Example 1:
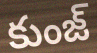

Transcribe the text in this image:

కుంజ్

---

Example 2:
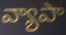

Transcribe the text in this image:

వ్యాపా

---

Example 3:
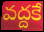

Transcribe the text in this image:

వద్దకే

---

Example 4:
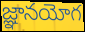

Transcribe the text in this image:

జ్ఞానయోగ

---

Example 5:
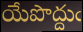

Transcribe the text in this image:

యేపొద్దుఁ